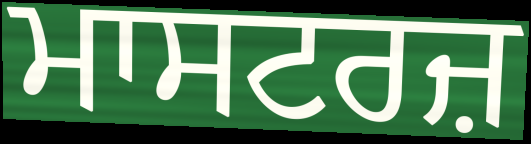
ਮਾਸਟਰਜ਼